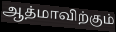
ஆத்மாவிற்கும்